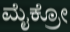
ಮೈಕ್ರೋ